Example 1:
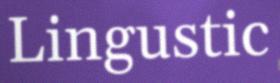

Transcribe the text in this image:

Lingustic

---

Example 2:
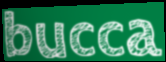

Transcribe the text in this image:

bucca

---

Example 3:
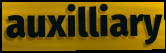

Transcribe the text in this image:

auxilliary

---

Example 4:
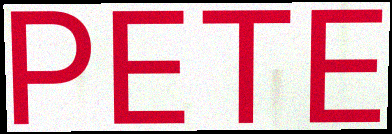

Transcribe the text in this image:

PETE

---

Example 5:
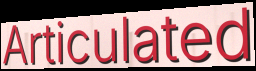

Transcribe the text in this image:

Articulated